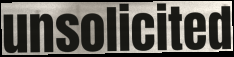
unsolicited